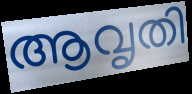
ആവൃതി